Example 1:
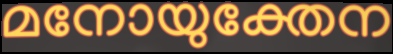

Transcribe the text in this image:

മനോയുക്തേന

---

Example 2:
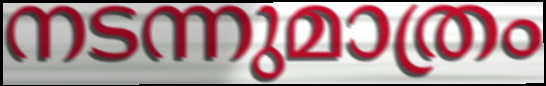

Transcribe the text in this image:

നടന്നുമാത്രം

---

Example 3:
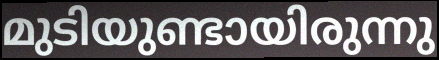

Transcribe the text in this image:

മുടിയുണ്ടായിരുന്നു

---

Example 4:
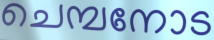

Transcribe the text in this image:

ചെമ്പനോട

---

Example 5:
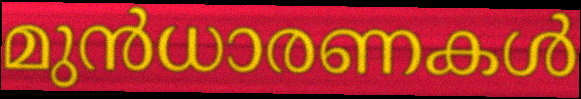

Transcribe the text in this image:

മുൻധാരണകൾ